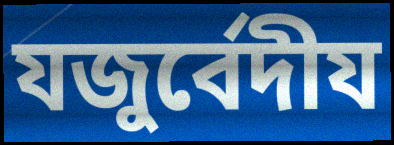
যজুর্বেদীয